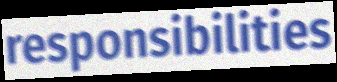
responsibilities